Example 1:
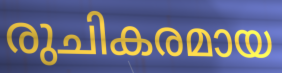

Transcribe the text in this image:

രുചികരമായ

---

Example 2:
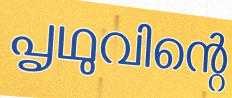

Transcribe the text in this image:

പൃഥുവിന്റെ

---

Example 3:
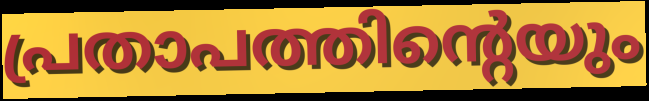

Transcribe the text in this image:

പ്രതാപത്തിന്റെയും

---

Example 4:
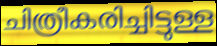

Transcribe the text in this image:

ചിത്രീകരിച്ചിട്ടുള്ള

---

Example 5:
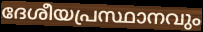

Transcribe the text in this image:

ദേശീയപ്രസ്ഥാനവും